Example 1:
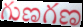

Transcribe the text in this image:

గుణగణ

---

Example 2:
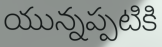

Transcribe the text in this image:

యున్నప్పటికి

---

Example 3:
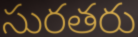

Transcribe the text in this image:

సురతరు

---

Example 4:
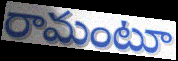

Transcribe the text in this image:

రామంటూ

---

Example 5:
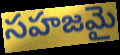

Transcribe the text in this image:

సహజమై